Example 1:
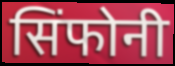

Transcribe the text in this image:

सिंफोनी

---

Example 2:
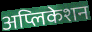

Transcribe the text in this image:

अप्लिकेशन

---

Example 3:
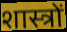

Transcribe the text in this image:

शास्त्रों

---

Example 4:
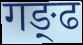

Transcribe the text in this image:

गङ्ढ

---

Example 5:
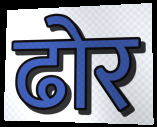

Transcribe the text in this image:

ढोर